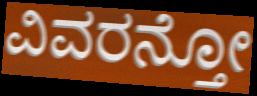
ವಿವರನ್ತೋ